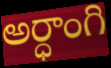
అర్ధాంగి